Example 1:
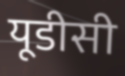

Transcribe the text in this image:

यूडीसी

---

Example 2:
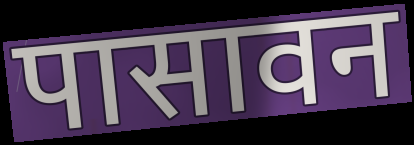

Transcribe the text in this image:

पासावन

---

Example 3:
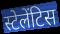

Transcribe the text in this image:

स्टेलेंटिस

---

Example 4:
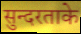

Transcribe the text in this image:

सुन्दरताके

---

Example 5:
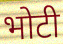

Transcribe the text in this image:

भोटी